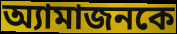
অ্যামাজনকে